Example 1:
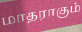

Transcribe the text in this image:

மாதராகும்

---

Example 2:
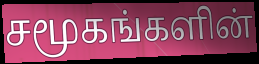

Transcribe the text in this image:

சமூகங்களின்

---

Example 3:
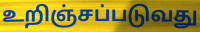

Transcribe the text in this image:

உறிஞ்சப்படுவது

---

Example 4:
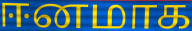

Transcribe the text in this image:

ஈனமாக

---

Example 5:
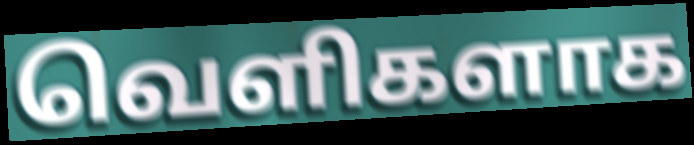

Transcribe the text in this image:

வெளிகளாக